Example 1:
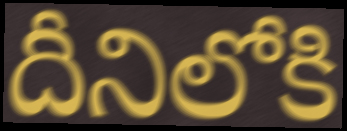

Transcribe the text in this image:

దీనిలోకి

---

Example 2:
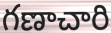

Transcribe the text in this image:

గణాచారి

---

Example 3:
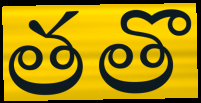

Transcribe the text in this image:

తతొ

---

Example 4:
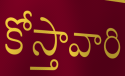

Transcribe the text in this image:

కోస్తావారి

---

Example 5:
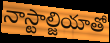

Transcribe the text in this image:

నాస్టాల్జియాతో